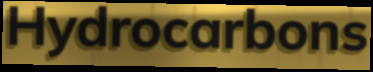
Hydrocarbons